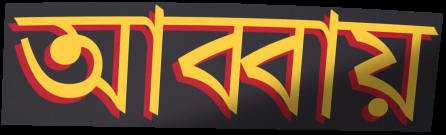
আব্বায়